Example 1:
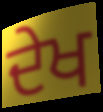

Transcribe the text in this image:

ਦੇਖ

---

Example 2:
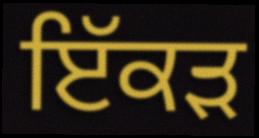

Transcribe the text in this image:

ਇੱਕੜ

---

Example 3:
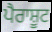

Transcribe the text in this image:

ਪੈਰਾਸ਼ੂਟ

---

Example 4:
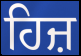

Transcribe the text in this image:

ਹਿਜ਼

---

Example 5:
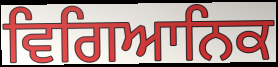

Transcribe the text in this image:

ਵਿਗਿਆਨਿਕ